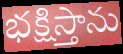
భక్షిస్తాను